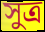
সুত্র